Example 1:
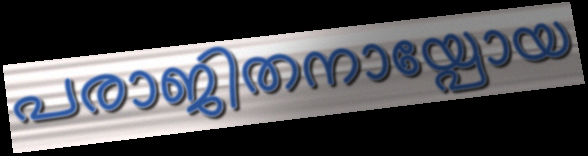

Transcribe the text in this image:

പരാജിതനായ്പോയ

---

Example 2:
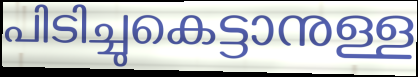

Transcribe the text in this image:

പിടിച്ചുകെട്ടാനുള്ള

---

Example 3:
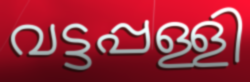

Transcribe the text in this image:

വട്ടപ്പള്ളി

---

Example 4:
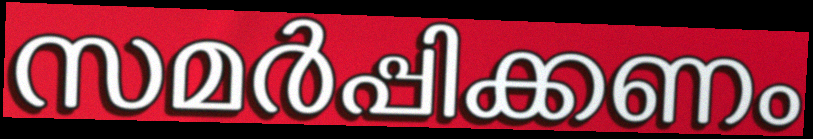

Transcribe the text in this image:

സമർപ്പിക്കണം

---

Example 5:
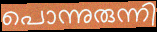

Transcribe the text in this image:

പൊന്നുരുന്നി